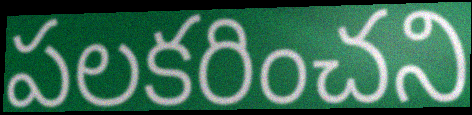
పలకరించని